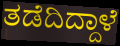
ತಡೆದಿದ್ದಾಳೆ